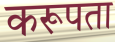
करूपता